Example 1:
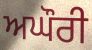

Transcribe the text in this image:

ਅਘੌਰੀ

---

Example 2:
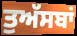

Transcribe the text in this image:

ਤੁਅੱਸਬਾਂ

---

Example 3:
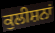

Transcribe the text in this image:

ਕੁਲੀਸ਼ਨਾਂ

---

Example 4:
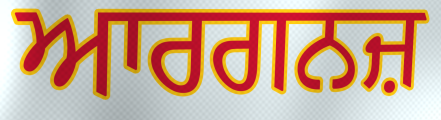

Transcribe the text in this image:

ਆਰਗਨਜ਼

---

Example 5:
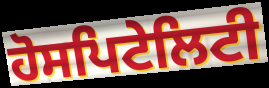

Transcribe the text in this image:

ਹੋਸਪਿਟੇਲਿਟੀ